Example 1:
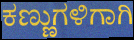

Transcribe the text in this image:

ಕಣ್ಣುಗಳಿಗಾಗಿ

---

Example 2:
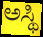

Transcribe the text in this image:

ಅಸ್ಥಿ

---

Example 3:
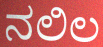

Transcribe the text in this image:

ನಲಿಲ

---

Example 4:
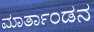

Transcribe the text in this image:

ಮಾರ್ತಾಂಡನ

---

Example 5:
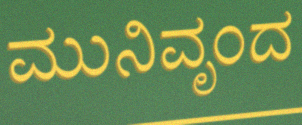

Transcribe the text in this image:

ಮುನಿವೃಂದ